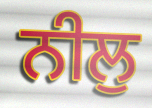
ਨੀਲੁ